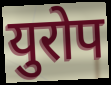
युरोप